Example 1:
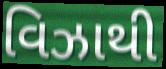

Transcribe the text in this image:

વિઝાથી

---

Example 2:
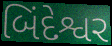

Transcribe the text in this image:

બિંદેશ્વર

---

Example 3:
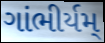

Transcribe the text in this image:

ગાંભીર્યમ્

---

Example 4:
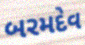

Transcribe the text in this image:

બરમદેવ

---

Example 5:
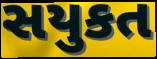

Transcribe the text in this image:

સયુકત